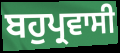
ਬਹੁਪ੍ਰਵਾਸੀ